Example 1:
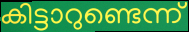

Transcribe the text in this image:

കിട്ടാറുണ്ടെന്ന്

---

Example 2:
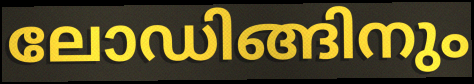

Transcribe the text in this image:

ലോഡിങ്ങിനും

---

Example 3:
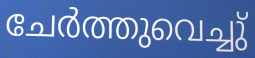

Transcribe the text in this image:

ചേർത്തുവെച്ചു്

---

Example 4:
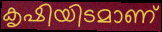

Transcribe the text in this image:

കൃഷിയിടമാണ്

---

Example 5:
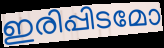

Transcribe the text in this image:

ഇരിപ്പിടമോ